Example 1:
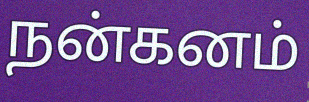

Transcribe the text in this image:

நன்கனம்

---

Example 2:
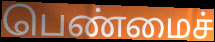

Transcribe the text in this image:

பெண்மைச்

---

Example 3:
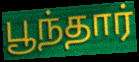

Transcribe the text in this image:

பூந்தார்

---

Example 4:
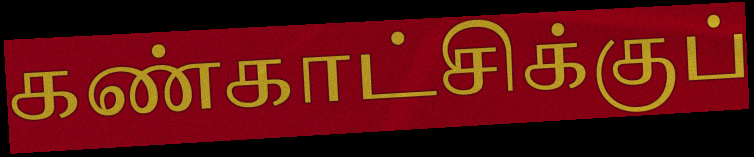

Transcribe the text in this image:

கண்காட்சிக்குப்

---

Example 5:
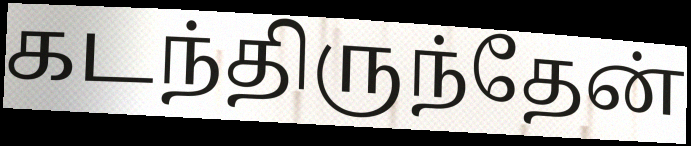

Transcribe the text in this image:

கடந்திருந்தேன்